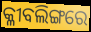
କ୍ଳୀବଲିଙ୍ଗରେ